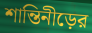
শান্তিনীড়ের